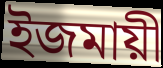
ইজমায়ী